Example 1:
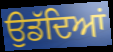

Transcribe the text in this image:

ਉਡੱਦਿਆਂ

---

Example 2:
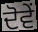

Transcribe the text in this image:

ਦੋਵੇਂ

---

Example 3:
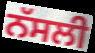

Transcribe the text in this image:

ਨੱਸਲੀ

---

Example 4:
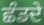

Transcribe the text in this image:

ਛੰਡਦੇ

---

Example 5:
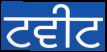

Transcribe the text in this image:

ਟਵੀਟ